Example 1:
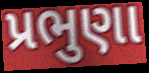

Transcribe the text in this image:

પ્રભુણા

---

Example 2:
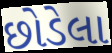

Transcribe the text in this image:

છોડેલા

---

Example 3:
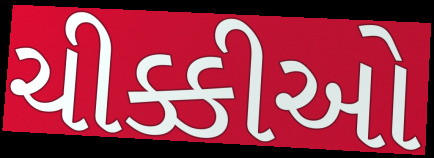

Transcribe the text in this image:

ચીક્કીઓ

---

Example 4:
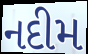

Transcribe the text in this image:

નદીમ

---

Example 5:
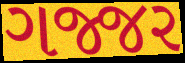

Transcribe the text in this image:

ગજ્જર